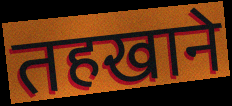
तहखाने